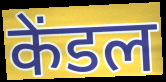
केंडल